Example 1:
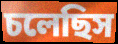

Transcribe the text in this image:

চলেছিস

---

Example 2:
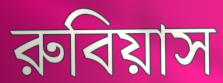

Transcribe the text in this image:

রুবিয়াস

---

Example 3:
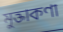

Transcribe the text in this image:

মুক্তাকণা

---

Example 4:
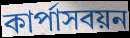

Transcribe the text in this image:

কার্পাসবয়ন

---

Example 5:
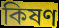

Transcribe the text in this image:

কিষণ